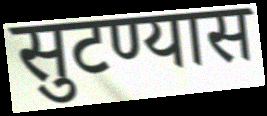
सुटण्यास